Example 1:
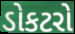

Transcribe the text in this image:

ડોકટરો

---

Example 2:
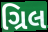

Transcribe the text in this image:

ગ્રિલ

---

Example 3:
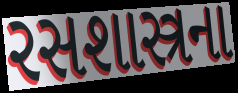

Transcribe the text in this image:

રસશાસ્ત્રના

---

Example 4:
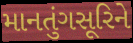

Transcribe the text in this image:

માનતુંગસૂરિને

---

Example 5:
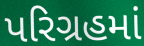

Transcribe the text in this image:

પરિગ્રહમાં